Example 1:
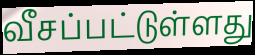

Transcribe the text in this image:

வீசப்பட்டுள்ளது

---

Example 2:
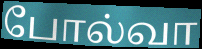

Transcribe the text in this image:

போல்வா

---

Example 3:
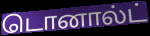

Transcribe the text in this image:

டொனால்ட்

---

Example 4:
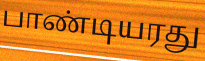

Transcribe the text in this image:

பாண்டியரது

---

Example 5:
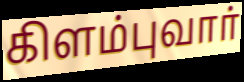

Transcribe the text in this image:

கிளம்புவார்